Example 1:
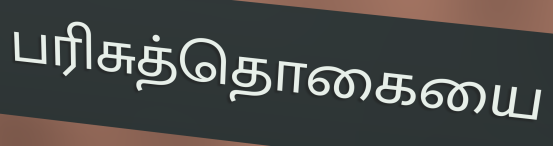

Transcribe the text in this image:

பரிசுத்தொகையை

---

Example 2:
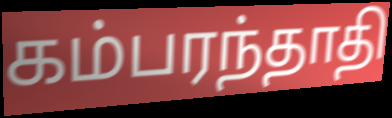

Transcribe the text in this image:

கம்பரந்தாதி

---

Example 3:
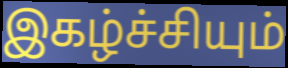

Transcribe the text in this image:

இகழ்ச்சியும்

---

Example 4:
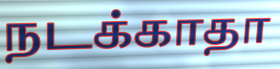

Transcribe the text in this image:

நடக்காதா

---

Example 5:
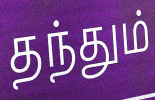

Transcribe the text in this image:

தந்தும்